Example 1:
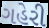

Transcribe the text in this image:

ગહેરી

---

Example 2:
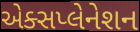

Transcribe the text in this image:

એક્સપ્લેનેશન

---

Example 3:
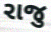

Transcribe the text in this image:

રાજુ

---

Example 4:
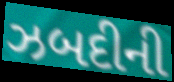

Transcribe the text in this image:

ઝબદીની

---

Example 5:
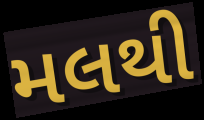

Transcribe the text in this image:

મલથી